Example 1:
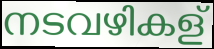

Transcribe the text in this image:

നടവഴികള്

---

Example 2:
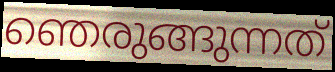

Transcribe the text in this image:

ഞെരുങ്ങുന്നത്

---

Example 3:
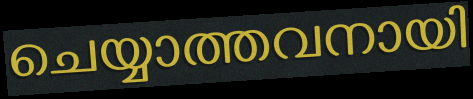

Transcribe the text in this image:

ചെയ്യാത്തവനായി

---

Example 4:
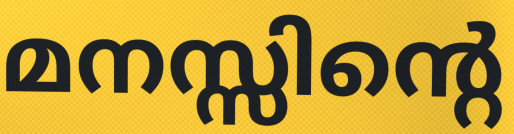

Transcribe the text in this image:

മനസ്സിന്റെ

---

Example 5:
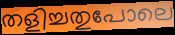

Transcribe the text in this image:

തളിച്ചതുപോലെ